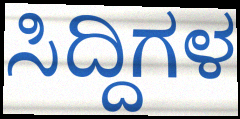
ಸಿದ್ದಿಗಳ